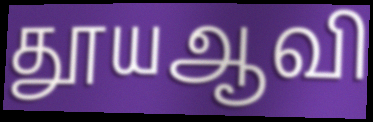
தூயஆவி